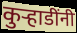
कुर्‍हाडींनी